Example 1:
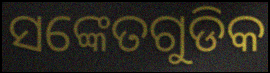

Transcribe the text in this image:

ସଙ୍କେତଗୁଡିକ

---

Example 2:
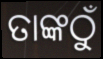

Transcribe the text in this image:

ତାଙ୍କଠୁଁ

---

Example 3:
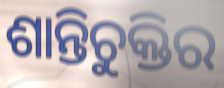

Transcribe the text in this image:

ଶାନ୍ତିଚୁକ୍ତିର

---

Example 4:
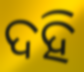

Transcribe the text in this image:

ଦହି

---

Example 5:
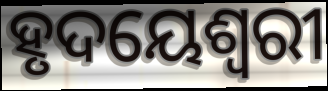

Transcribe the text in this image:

ହୃଦୟେଶ୍ୱରୀ